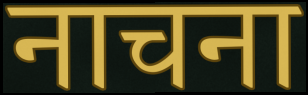
नाचना